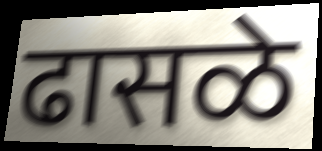
ढासळे